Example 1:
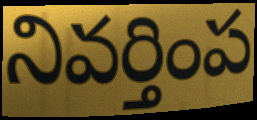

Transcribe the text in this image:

నివర్తింప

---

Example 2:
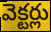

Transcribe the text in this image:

వెక్టర్లు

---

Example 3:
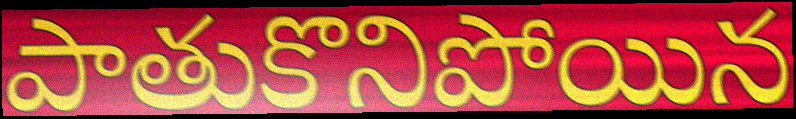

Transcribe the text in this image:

పాతుకొనిపోయిన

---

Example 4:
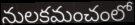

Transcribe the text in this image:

నులకమంచంలో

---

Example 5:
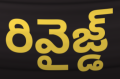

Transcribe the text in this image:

రివైజ్డ్